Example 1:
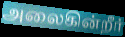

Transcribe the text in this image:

அலைகின்றீர்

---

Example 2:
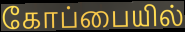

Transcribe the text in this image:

கோப்பையில்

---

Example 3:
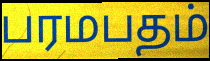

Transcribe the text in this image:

பரமபதம்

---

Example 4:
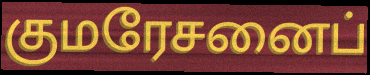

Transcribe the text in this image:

குமரேசனைப்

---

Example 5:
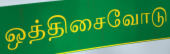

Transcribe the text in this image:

ஒத்திசைவோடு